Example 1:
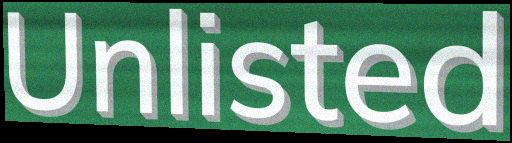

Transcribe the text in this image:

Unlisted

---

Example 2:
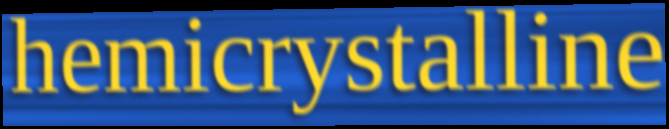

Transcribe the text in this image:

hemicrystalline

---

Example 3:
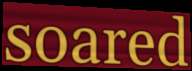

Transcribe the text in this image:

soared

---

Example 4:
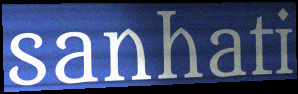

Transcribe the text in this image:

sanhati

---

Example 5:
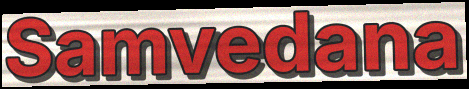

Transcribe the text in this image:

Samvedana